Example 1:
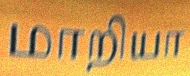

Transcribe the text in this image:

மாறியா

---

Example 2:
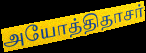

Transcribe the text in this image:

அயோத்திதாசர்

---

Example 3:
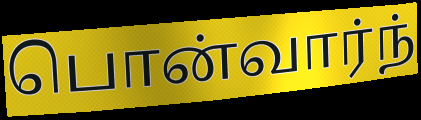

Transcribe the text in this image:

பொன்வார்ந்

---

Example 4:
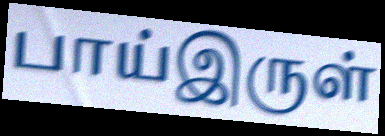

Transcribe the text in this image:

பாய்இருள்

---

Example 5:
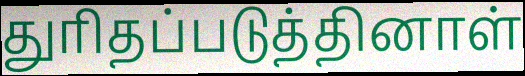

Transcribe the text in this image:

துரிதப்படுத்தினாள்